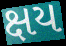
ક્ષય